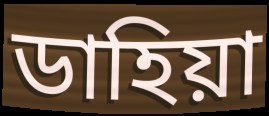
ডাহিয়া